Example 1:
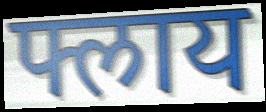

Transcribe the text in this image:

फ्लाय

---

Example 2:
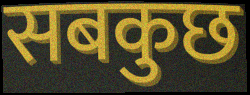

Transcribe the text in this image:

सबकुछ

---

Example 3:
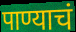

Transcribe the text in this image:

पाण्याचं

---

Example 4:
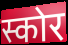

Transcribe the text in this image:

स्कोर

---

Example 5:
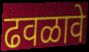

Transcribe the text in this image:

ढवळावे